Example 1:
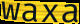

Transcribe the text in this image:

waxa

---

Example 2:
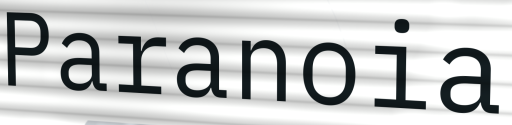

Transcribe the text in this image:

Paranoia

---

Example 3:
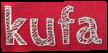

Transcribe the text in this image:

kufa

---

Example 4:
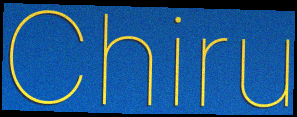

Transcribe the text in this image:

Chiru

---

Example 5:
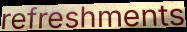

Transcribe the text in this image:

refreshments